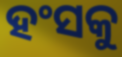
ହଂସକୁ